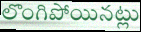
లొంగిపోయినట్లు